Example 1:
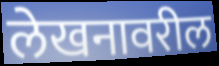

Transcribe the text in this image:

लेखनावरील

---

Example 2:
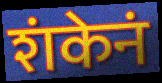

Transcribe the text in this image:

शंकेनं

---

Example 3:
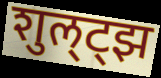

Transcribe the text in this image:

शुल्ट्झ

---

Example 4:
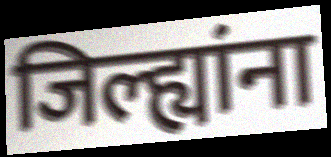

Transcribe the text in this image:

जिल्ह्यांना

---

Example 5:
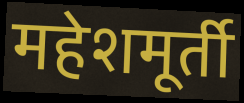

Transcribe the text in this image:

महेशमूर्ती